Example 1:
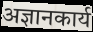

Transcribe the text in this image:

अज्ञानकार्य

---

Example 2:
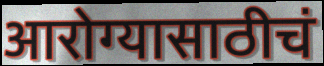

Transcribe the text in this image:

आरोग्यासाठीचं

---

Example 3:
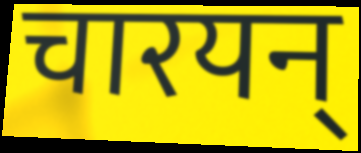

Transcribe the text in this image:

चारयन्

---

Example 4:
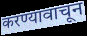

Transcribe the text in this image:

करण्यावाचून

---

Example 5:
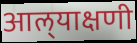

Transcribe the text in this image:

आल्याक्षणी